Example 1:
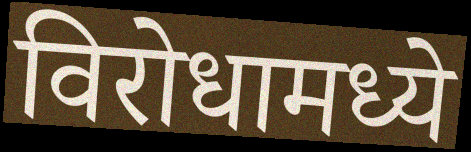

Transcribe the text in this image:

विरोधामध्ये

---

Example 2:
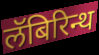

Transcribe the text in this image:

लॅबिरिन्थ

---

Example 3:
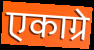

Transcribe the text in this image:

एकाग्रे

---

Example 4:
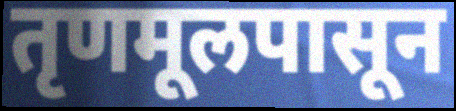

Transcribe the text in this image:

तृणमूलपासून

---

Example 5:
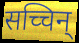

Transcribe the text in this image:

सच्चिन्